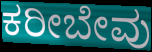
ಕರೀಬೇವು